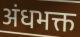
अंधभक्त